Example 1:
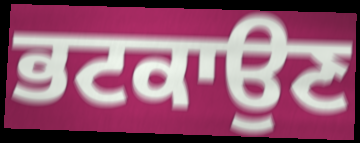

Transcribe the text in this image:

ਭਟਕਾਉਣ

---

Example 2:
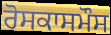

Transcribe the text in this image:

ਰੋਸਕਾਸਮੌਸ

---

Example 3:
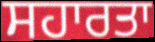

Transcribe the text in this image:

ਸਹਾਰਤਾ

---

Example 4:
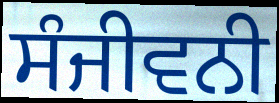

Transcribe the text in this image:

ਸੰਜੀਵਨੀ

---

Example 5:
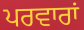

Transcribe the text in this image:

ਪਰਵਾਰਾਂ